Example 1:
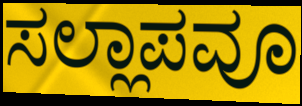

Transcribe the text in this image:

ಸಲ್ಲಾಪವೂ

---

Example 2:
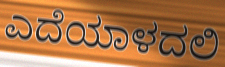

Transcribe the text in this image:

ಎದೆಯಾಳದಲಿ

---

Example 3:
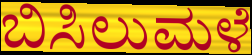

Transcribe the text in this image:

ಬಿಸಿಲುಮಳೆ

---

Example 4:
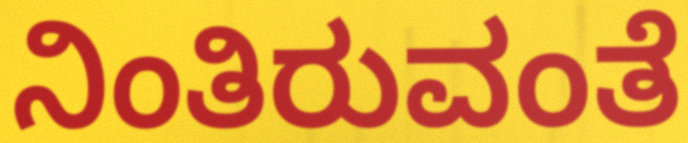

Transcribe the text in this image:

ನಿಂತಿರುವಂತೆ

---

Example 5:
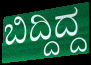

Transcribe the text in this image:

ಬಿದ್ದಿದ್ದ